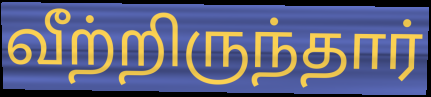
வீற்றிருந்தார்